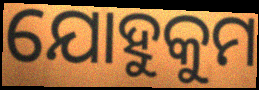
ଯୋହୁକୁମ